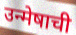
उन्मेषाची